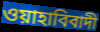
ওয়াহাবিবাদী